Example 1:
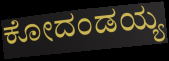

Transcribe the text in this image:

ಕೋದಂಡಯ್ಯ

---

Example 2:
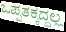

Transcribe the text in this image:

ಒಪ್ಪತಕ್ಕದ್ದಲ್ಲ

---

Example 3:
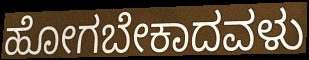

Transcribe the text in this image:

ಹೋಗಬೇಕಾದವಳು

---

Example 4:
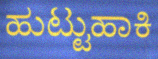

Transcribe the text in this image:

ಹುಟ್ಟುಹಾಕಿ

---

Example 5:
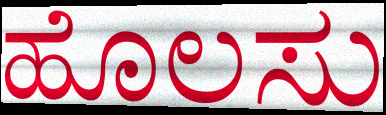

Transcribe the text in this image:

ಹೊಲಸು